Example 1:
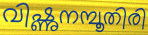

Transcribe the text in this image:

വിഷ്ണുനമ്പൂതിരി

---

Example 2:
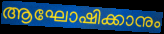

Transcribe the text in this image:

ആഘോഷിക്കാനും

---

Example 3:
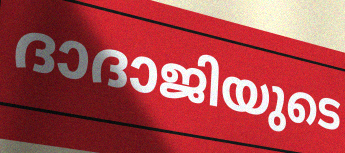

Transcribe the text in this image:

ദാദാജിയുടെ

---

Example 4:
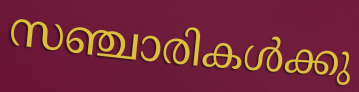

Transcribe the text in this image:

സഞ്ചാരികൾക്കു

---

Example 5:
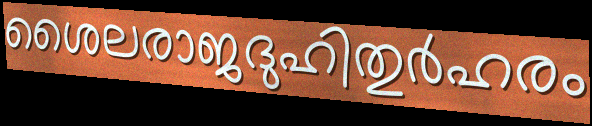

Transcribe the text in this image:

ശൈലരാജദുഹിതുർഹരം